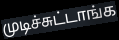
முடிச்சுட்டாங்க